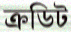
ক্রডিট